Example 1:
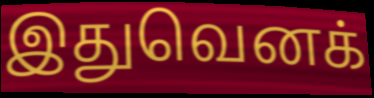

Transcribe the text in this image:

இதுவெனக்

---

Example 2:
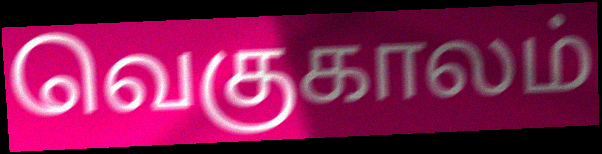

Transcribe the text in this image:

வெகுகாலம்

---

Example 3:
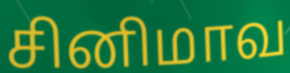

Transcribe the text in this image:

சினிமாவ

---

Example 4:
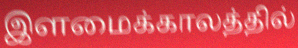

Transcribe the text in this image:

இளமைக்காலத்தில்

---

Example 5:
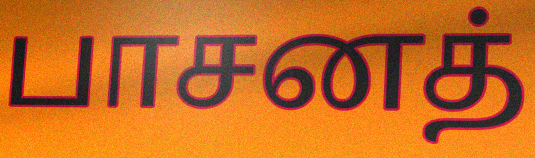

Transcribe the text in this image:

பாசனத்